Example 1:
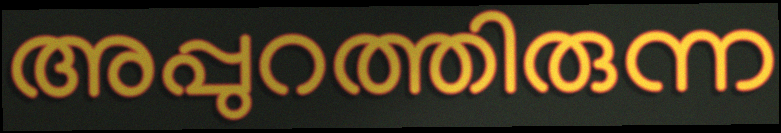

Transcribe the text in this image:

അപ്പുറത്തിരുന്ന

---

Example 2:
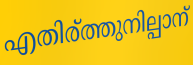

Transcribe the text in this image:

എതിര്ത്തുനില്പാന്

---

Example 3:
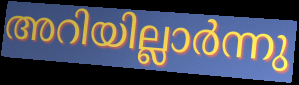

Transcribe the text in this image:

അറിയില്ലാർന്നു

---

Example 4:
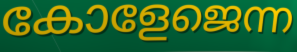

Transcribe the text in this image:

കോളേജെന്ന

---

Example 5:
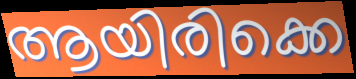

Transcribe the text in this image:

ആയിരിക്കെ